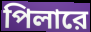
পিলারে